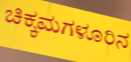
ಚಿಕ್ಕಮಗಳೂರಿನ